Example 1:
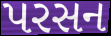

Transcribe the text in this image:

પરસન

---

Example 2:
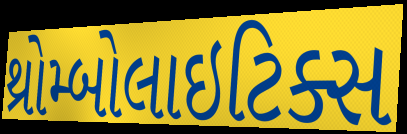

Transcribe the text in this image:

થ્રોમ્બોલાઇટિક્સ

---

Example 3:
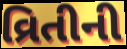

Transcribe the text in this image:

વ્રિતીની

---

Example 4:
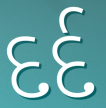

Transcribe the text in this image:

દર્દ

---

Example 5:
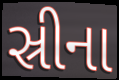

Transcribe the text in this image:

સ્રીના